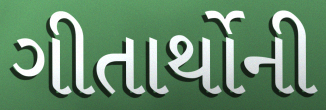
ગીતાર્થોની